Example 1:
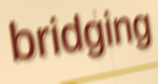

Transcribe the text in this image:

bridging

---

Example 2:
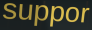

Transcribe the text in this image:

suppor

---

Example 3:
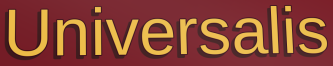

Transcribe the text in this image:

Universalis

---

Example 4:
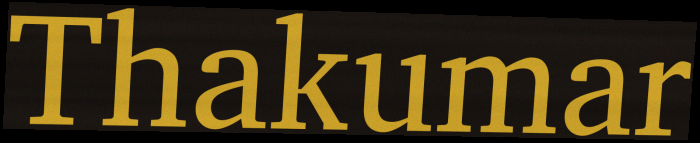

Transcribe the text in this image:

Thakumar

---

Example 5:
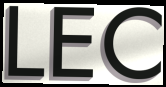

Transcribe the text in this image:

LEC